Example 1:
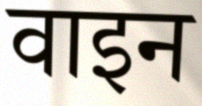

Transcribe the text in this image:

वाइन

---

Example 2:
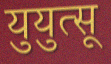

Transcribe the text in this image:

युयुत्सू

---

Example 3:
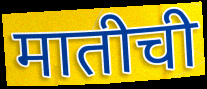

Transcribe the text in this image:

मातीची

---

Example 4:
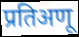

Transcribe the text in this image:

प्रतिअणू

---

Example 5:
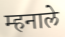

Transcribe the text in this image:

म्हनाले